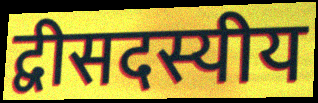
द्वीसदस्यीय